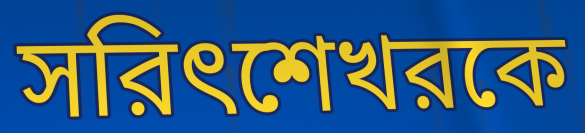
সরিৎশেখরকে